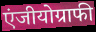
एंजीयोग्राफी